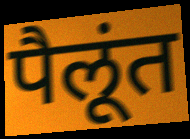
पैलूंत